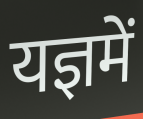
यज्ञमें